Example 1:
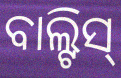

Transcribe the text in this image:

ବାଲ୍ଟିସ୍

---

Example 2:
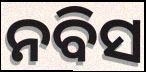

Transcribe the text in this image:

ନବିସ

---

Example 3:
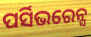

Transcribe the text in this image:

ପର୍ସିଭରେନ୍ସ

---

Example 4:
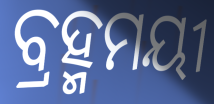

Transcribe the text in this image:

ବ୍ରହ୍ମମୟୀ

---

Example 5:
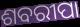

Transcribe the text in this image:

ଶବରୀପା